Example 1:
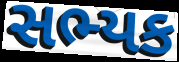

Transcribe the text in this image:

સભ્યક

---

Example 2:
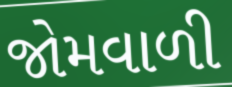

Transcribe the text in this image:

જોમવાળી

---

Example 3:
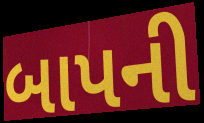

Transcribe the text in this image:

બાપની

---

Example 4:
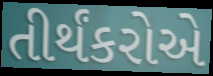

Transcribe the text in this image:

તીર્થંકરોએ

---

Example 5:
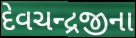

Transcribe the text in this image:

દેવચન્દ્રજીના